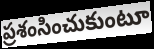
ప్రశంసించుకుంటూ